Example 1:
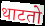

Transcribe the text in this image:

थाटतो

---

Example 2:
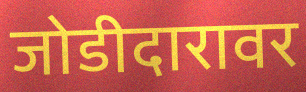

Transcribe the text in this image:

जोडीदारावर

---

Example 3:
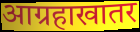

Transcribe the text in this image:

आग्रहाखातर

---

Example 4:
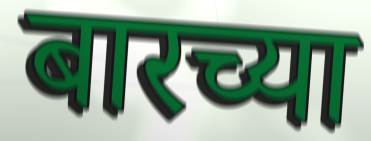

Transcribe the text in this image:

बारच्या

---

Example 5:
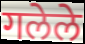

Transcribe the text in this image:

गलेले